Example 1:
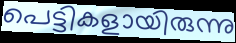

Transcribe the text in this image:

പെട്ടികളായിരുന്നു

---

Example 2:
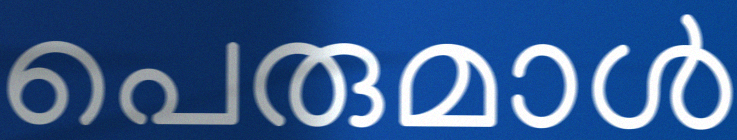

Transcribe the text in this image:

പെരുമാൾ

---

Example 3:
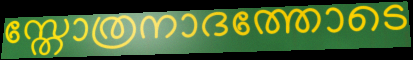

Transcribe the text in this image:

സ്തോത്രനാദത്തോടെ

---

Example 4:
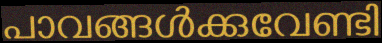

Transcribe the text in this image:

പാവങ്ങൾക്കുവേണ്ടി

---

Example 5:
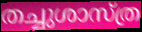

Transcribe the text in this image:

തച്ചുശാസ്ത്ര